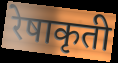
रेषाकृती